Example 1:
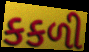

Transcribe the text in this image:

કકળી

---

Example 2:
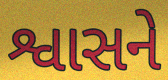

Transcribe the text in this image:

શ્વાસને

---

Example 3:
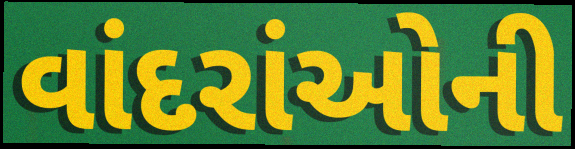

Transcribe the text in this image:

વાંદરાંઓની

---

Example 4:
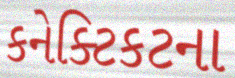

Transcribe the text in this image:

કનેક્ટિકટના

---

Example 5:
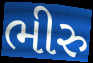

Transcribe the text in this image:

ભીરુ